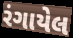
રંગાયેલ